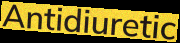
Antidiuretic